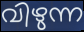
വിഴുന്ന